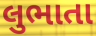
લુભાતા